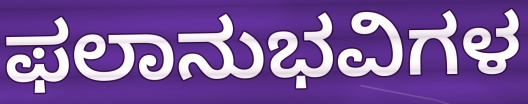
ಫಲಾನುಭವಿಗಳ